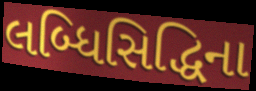
લબ્ધિસિદ્ધિના